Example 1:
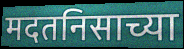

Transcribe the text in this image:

मदतनिसाच्या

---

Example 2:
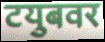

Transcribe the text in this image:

टयुबवर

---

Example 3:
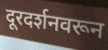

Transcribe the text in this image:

दूरदर्शनवरून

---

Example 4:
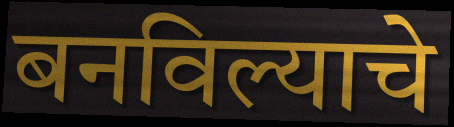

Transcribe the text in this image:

बनविल्याचे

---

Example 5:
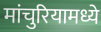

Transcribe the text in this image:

मांचुरियामध्ये